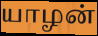
யாழன்